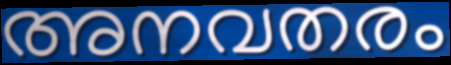
അനവതരം